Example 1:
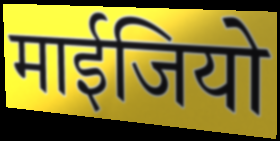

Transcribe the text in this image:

माईजियो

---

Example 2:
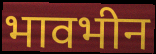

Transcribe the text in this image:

भावभीन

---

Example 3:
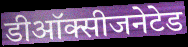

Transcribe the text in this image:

डीऑक्सीजनेटेड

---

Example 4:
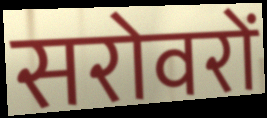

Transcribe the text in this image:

सरोवरों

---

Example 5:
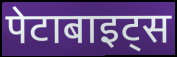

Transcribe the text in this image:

पेटाबाइट्स